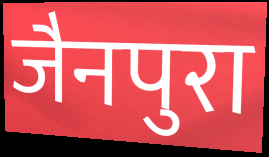
जैनपुरा